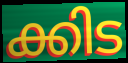
ക്കിട